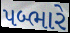
પબ્ભારે